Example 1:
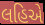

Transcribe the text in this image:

લહિએ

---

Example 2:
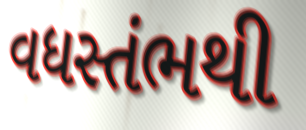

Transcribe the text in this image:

વધસ્તંભથી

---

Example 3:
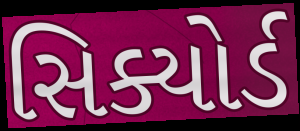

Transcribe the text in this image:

સિક્યોર્ડ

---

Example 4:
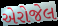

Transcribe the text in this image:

એરોજેલ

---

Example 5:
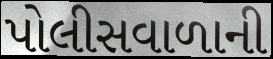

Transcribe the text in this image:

પોલીસવાળાની